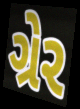
ગ્રેર